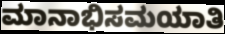
ಮಾನಾಭಿಸಮಯಾತಿ